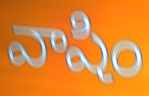
వాషిం